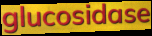
glucosidase